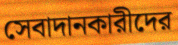
সেবাদানকারীদের